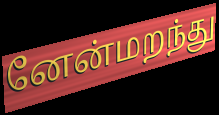
னேன்மறந்து